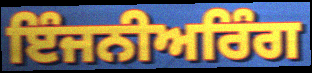
ਇੰਜਨੀਅਰਿੰਗ